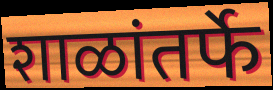
शाळांतर्फे